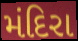
મંદિરા